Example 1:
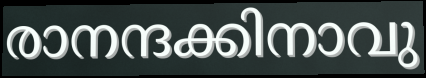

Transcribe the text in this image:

രാനന്ദക്കിനാവു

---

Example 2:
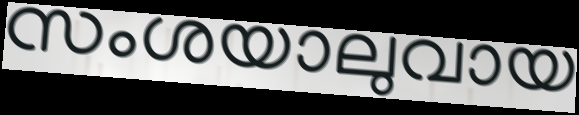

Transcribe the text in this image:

സംശയാലുവായ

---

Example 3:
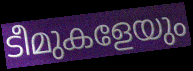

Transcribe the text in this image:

ടീമുകളേയും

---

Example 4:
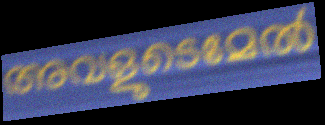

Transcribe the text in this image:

അവളുടെമേൽ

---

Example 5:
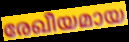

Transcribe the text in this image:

രേഖീയമായ